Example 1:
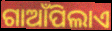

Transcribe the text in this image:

ଗାଆଁପିଲାଏ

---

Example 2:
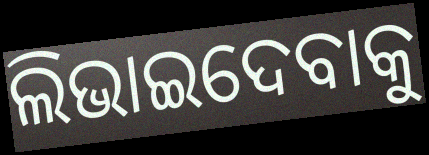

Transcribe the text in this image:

ଲିଭାଇଦେବାକୁ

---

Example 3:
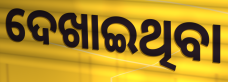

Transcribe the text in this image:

ଦେଖାଇଥିବା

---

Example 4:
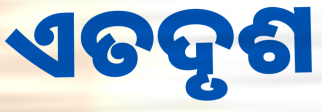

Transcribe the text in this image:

ଏତଦୃଶ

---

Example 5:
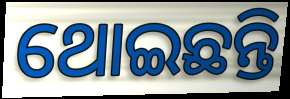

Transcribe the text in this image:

ଥୋଇଛନ୍ତି